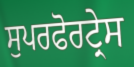
ਸੁਪਰਫੋਰਟ੍ਰੇਸ